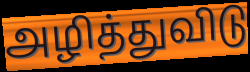
அழித்துவிடு